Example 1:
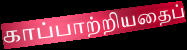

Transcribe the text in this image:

காப்பாற்றியதைப்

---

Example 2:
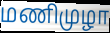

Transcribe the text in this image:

மணிமுழா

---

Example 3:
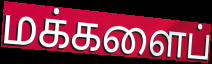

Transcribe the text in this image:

மக்களைப்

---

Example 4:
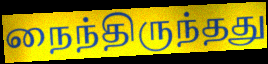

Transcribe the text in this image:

நைந்திருந்தது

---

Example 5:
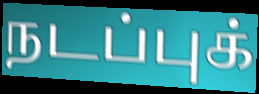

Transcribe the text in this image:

நடப்புக்